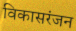
विकासरंजन